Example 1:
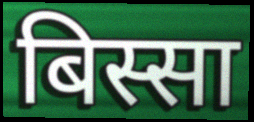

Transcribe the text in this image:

बिस्सा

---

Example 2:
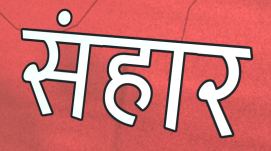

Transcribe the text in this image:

संहार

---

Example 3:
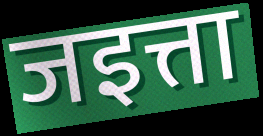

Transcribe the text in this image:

जइत्ता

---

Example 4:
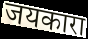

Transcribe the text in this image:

जयकारा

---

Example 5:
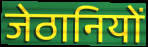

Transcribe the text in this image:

जेठानियों